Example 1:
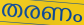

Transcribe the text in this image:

തരണം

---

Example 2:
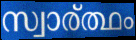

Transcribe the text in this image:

സ്വാര്ത്ഥം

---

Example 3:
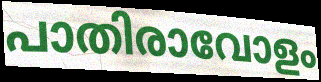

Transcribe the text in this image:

പാതിരാവോളം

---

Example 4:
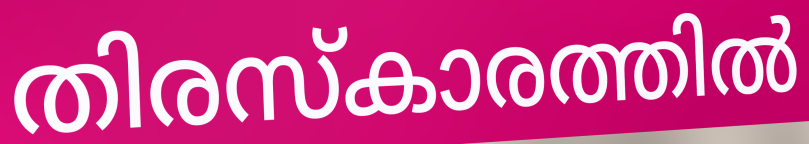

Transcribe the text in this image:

തിരസ്കാരത്തിൽ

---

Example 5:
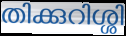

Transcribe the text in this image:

തിക്കുറിശ്ശി